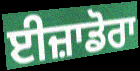
ਈਜ਼ਾਡੋਰਾ